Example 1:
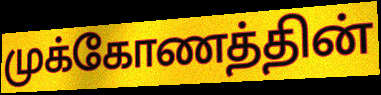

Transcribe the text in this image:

முக்கோணத்தின்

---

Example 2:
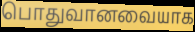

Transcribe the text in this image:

பொதுவானவையாக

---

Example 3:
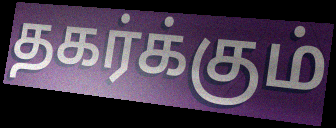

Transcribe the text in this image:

தகர்க்கும்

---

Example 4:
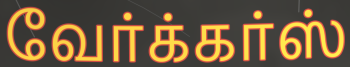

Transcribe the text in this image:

வேர்க்கர்ஸ்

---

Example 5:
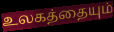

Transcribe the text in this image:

உலகத்தையும்